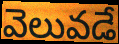
వెలువడే